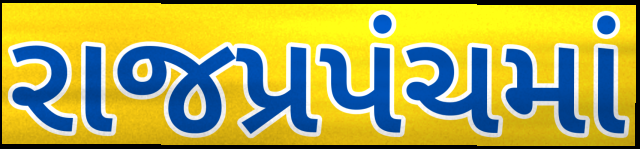
રાજપ્રપંચમાં